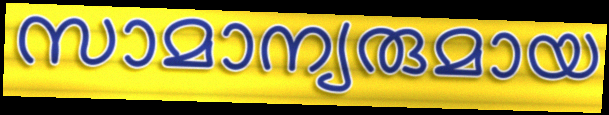
സാമാന്യരുമായ